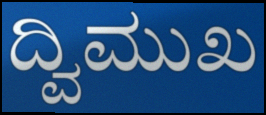
ದ್ವಿಮುಖ